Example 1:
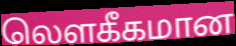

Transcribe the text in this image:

லெளகீகமான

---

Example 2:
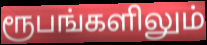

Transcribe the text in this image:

ரூபங்களிலும்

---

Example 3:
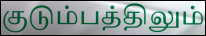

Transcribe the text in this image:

குடும்பத்திலும்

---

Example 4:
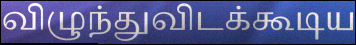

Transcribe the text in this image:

விழுந்துவிடக்கூடிய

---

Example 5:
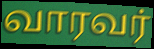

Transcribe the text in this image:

வாரவர்